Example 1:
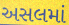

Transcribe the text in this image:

અસલમાં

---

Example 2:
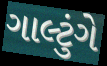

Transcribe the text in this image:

ગાલ્ટુંગે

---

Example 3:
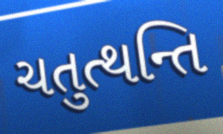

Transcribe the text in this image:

ચતુત્થન્તિ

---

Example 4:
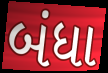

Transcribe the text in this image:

બંધા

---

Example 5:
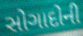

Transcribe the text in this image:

સોગાદોની